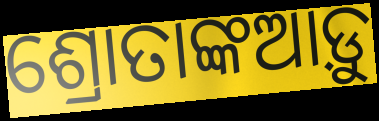
ଶ୍ରୋତାଙ୍କଆଡ଼ୁ